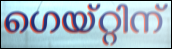
ഗെയ്റ്റിന്